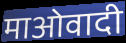
माओवादी